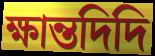
ক্ষান্তদিদি